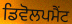
ਡਿਵੋਲਪਮੈਂਟ